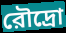
রৌদ্রো